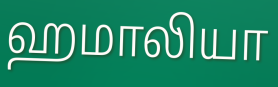
ஹமாலியா